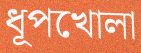
ধূপখোলা